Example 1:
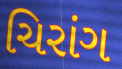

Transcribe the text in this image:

ચિરાંગ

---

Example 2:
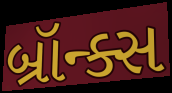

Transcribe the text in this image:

બ્રૉન્ક્સ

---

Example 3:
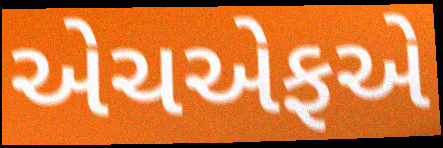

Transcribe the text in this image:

એચએફએ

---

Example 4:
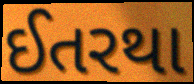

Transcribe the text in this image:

ઈતરથા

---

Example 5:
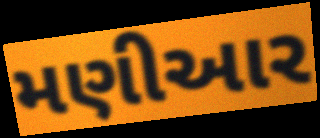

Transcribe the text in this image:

મણીઆર